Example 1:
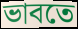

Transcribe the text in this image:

ভাবতে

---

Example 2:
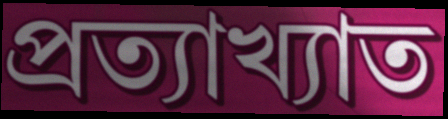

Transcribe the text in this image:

প্রত্যাখ্যাত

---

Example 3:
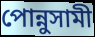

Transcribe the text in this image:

পোন্নুসামী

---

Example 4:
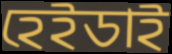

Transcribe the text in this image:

হেইডাই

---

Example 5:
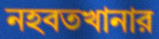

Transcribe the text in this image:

নহবতখানার